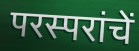
परस्परांचें